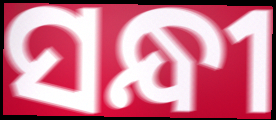
ସନ୍ଧୀ